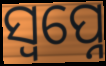
ସ୍ବପ୍ନେ